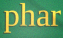
phar